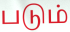
படும்